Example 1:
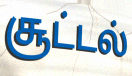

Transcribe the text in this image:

சூட்டல்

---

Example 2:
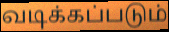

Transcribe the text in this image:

வடிக்கப்படும்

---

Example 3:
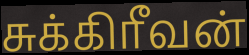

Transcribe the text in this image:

சுக்கிரீவன்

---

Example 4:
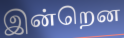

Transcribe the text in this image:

இன்றென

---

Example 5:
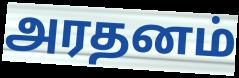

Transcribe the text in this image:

அரதனம்